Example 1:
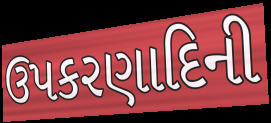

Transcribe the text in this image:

ઉપકરણાદિની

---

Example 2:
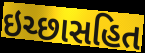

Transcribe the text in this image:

ઇચ્છાસહિત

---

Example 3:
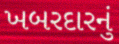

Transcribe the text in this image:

ખબરદારનું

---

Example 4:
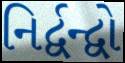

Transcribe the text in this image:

નિર્દ્વન્દ્વો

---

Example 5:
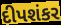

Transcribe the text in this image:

દીપશંકર